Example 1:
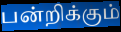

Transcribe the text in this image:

பன்றிக்கும்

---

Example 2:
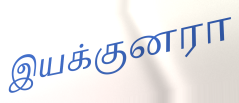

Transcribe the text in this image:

இயக்குனரா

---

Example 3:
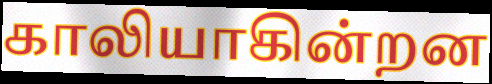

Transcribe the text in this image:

காலியாகின்றன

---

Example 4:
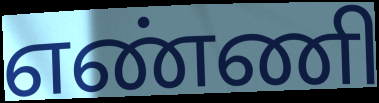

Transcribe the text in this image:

எண்ணி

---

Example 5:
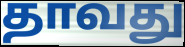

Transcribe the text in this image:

தாவது